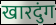
खारदुंग